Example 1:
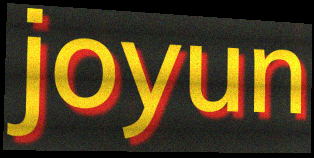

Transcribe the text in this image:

joyun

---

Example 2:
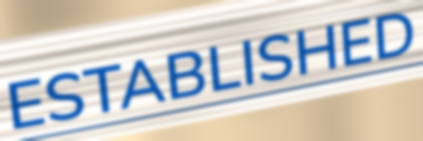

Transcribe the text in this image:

ESTABLISHED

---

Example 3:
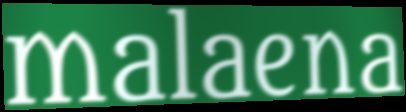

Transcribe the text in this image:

malaena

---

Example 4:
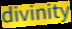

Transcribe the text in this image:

divinity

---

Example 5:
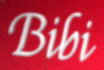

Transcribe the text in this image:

Bibi